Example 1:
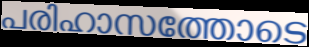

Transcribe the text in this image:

പരിഹാസത്തോടെ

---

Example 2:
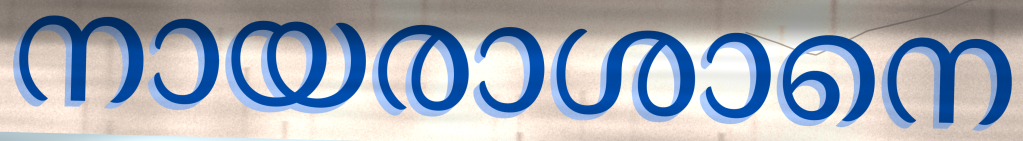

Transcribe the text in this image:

നായരാശാനെ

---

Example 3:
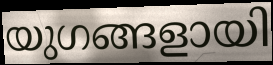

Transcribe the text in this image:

യുഗങ്ങളായി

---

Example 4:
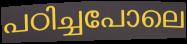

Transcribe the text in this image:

പഠിച്ചപോലെ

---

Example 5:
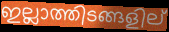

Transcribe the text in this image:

ഇല്ലാത്തിടങ്ങളില്